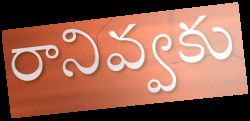
రానివ్వకు